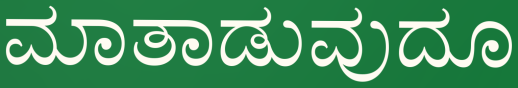
ಮಾತಾಡುವುದೂ